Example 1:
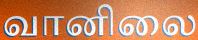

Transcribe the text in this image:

வானிலை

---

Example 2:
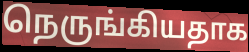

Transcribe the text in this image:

நெருங்கியதாக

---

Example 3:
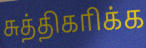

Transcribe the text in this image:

சுத்திகரிக்க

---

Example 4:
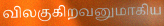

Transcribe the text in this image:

விலகுகிறவனுமாகிய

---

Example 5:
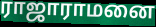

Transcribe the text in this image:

ராஜாராமனை